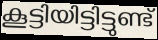
കൂട്ടിയിട്ടിട്ടുണ്ട്